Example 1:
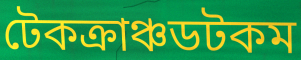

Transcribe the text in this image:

টেকক্রাঞ্চডটকম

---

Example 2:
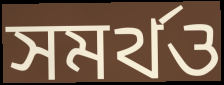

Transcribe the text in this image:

সমর্থও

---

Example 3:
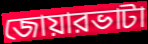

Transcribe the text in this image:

জোয়ারভাটা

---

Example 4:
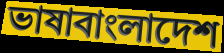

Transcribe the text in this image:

ভাষাবাংলাদেশ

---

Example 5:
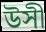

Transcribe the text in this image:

উসী